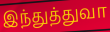
இந்துத்துவா